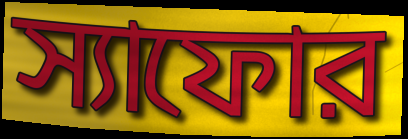
স্যাফোর